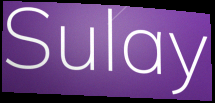
Sulay